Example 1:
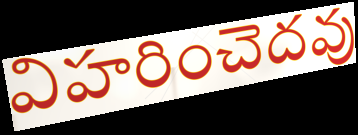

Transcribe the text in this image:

విహరించెదవు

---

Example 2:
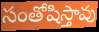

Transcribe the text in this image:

సంతోషిస్తావు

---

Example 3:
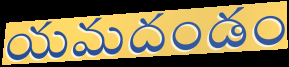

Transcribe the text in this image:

యమదండం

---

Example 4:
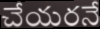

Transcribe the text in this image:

చేయరనే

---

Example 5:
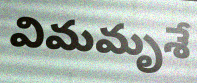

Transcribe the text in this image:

విమమృశే